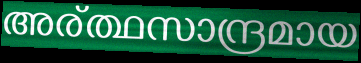
അര്ത്ഥസാന്ദ്രമായ